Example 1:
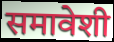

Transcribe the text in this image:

समावेशी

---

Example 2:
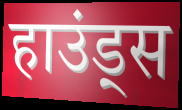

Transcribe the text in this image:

हाउंड्स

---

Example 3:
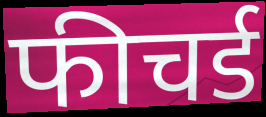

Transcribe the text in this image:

फीचर्ड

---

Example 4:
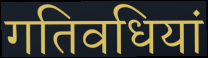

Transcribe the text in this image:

गतिवधियां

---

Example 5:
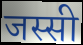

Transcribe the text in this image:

जस्सी